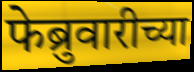
फेब्रुवारीच्या